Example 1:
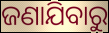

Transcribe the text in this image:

ଜଣାଯିବାରୁ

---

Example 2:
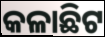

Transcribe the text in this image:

କଳାଛିଟ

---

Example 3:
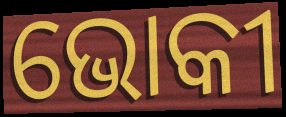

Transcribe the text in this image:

ଭୋକୀ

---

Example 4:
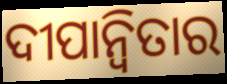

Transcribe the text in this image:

ଦୀପାନ୍ୱିତାର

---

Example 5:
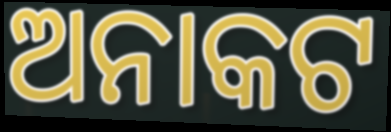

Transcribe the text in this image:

ଅନାକଟ